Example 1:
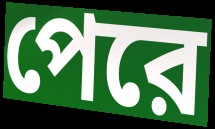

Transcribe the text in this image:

পেরে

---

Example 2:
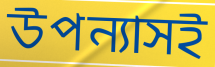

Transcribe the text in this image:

উপন্যাসই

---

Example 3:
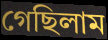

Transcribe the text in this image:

গেছিলাম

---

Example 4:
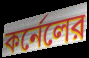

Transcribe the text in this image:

কর্নেলের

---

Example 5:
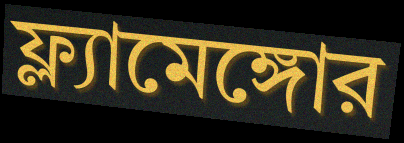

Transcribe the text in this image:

ফ্ল্যামেঙ্গোর